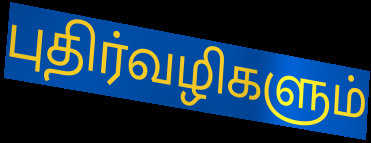
புதிர்வழிகளும்